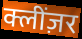
क्लींज़र